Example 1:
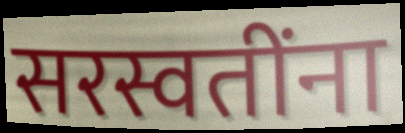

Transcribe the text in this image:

सरस्वतींना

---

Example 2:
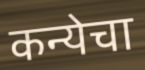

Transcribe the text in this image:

कन्येचा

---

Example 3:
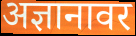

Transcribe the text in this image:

अज्ञानावर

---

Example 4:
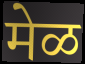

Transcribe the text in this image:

मेळ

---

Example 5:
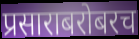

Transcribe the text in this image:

प्रसाराबरोबरच